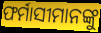
ଫର୍ମାସୀମାନଙ୍କୁ